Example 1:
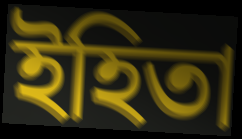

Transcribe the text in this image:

ইহিতা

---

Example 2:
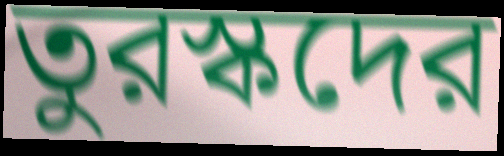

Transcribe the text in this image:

তুরস্কদের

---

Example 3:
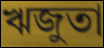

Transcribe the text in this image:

ঋজুতা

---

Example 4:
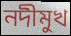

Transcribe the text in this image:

নদীমুখ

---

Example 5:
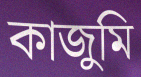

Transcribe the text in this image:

কাজুমি